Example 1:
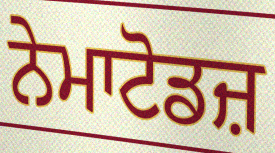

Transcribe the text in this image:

ਨੇਮਾਟੋਡਜ਼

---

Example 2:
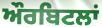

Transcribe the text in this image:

ਔਰਬਿਟਲਾਂ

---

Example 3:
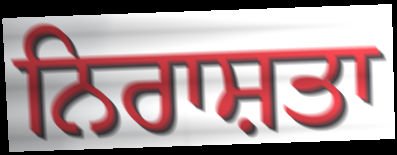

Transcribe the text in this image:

ਨਿਰਾਸ਼ਤਾ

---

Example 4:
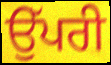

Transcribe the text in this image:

ਉੱਪਰੀ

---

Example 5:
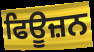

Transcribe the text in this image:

ਫਿਊਜ਼ਨ